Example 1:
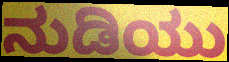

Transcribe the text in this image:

ನುಡಿಯು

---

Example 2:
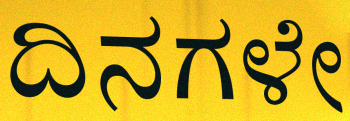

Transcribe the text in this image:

ದಿನಗಳೇ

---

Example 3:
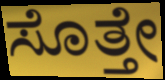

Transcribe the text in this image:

ಸೊತ್ತೇ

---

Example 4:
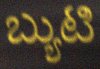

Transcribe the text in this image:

ಬ್ಯುಟಿ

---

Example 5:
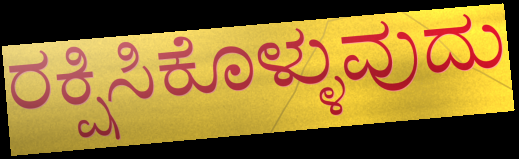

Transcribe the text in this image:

ರಕ್ಷಿಸಿಕೊಳ್ಳುವುದು